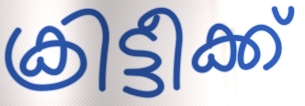
ക്രിട്ടീക്ക്